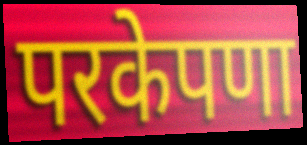
परकेपणा